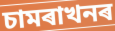
চামৰাখনৰ